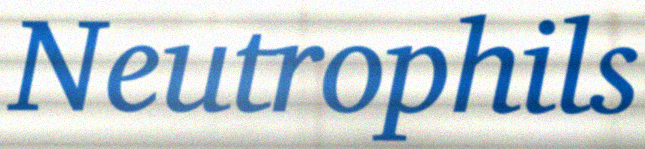
Neutrophils